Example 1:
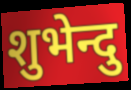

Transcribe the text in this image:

शुभेन्दु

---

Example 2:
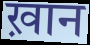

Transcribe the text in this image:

ख़ान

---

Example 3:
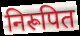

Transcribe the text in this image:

निरूपित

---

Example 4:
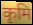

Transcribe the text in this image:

कृमि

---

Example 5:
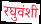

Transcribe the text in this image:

रघुवंशी